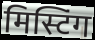
मिस्टिंग